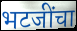
भटजींचा